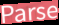
Parse